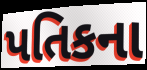
પતિકના